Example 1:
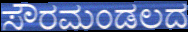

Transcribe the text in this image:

ಸೌರಮಂಡಲದ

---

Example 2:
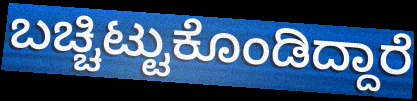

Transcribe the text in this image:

ಬಚ್ಚಿಟ್ಟುಕೊಂಡಿದ್ದಾರೆ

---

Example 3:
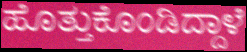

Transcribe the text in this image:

ಹೊತ್ತುಕೊಂಡಿದ್ದಾಳೆ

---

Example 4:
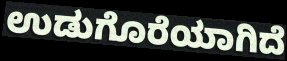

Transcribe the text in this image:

ಉಡುಗೊರೆಯಾಗಿದೆ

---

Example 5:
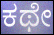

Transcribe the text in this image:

ಕಥೇ